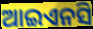
ଆଇଏନସି